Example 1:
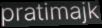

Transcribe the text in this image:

pratimajk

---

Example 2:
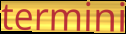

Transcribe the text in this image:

termini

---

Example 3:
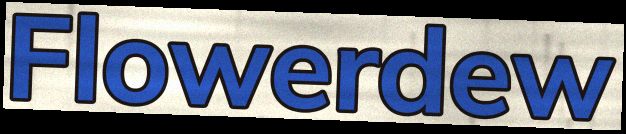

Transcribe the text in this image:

Flowerdew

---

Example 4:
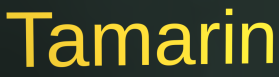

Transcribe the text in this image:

Tamarin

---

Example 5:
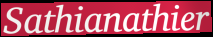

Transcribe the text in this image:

Sathianathier